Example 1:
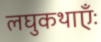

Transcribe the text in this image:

लघुकथाएँः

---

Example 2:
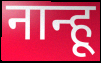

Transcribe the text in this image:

नान्हू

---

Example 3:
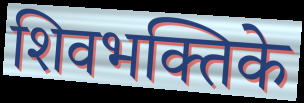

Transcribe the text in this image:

शिवभक्तिके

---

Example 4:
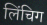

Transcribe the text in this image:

लिंचिग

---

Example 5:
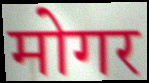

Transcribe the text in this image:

मोगर